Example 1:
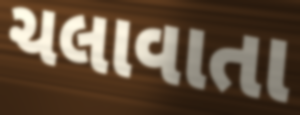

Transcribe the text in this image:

ચલાવાતા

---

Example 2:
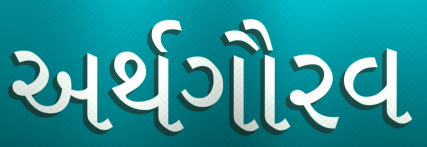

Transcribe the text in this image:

અર્થગૌરવ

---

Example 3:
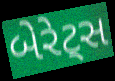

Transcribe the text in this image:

બેરેટ્સ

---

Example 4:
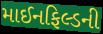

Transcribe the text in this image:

માઈનફિલ્ડની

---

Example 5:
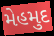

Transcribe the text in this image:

મેહમુદ